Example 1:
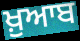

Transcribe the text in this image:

ਖ਼ੁਆਬ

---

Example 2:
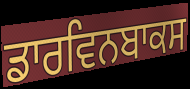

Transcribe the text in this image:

ਡਾਰਵਿਨਬਾਕਸ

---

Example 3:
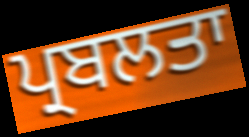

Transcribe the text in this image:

ਪ੍ਰਬਲਤਾ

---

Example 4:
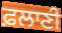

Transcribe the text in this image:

ਫ਼ਲਾਣੀ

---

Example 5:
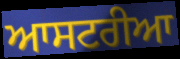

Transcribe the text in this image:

ਆਸਟਰੀਆ